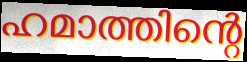
ഹമാത്തിന്റെ